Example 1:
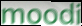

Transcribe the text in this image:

moodi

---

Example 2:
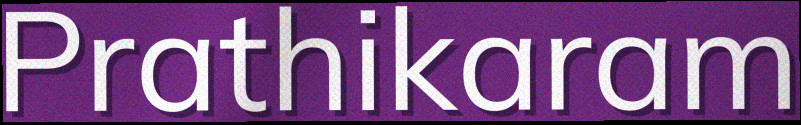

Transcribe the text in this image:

Prathikaram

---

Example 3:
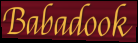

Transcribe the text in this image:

Babadook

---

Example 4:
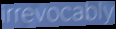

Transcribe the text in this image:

irrevocably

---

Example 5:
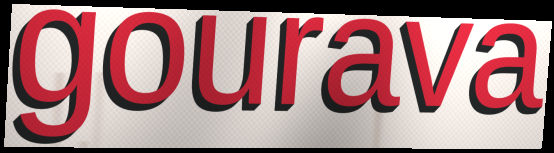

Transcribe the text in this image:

gourava